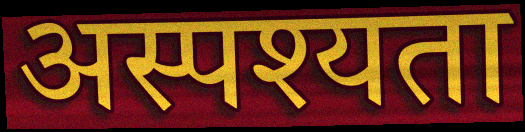
अस्पश्यता